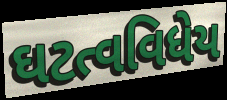
ઘટત્વવિધેય